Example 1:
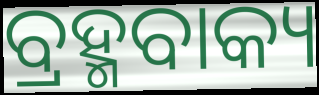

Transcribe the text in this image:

ବ୍ରହ୍ମବାକ୍ୟ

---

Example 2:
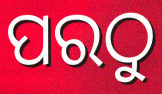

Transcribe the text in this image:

ପରଠୁ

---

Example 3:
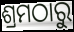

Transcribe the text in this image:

ଶ୍ରମଠାରୁ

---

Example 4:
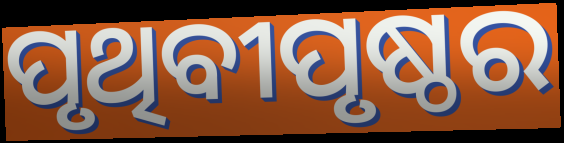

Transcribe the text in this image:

ପୃଥିବୀପୃଷ୍ଠର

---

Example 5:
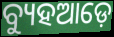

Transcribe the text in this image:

ବ୍ୟୁହଆଡ଼େ